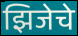
झिजेचे